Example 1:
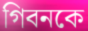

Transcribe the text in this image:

গিবনকে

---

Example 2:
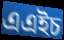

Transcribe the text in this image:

এএইচ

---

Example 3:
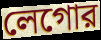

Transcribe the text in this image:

লেগোর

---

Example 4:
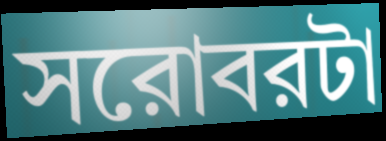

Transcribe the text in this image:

সরোবরটা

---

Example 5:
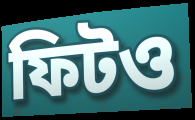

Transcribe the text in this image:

ফিটও